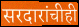
सरदारांचीही